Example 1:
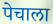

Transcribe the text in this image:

पेचाला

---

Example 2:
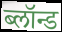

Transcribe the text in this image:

ब्लॉन्ड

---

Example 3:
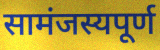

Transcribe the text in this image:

सामंजस्यपूर्ण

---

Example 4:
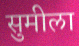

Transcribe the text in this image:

सुमीला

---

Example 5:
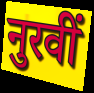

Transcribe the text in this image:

नुरवीं